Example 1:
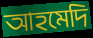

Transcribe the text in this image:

আহমেদি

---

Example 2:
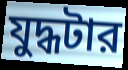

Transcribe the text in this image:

যুদ্ধটার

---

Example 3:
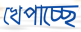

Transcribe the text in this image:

খেপাচ্ছে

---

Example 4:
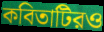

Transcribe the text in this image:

কবিতাটিরও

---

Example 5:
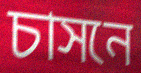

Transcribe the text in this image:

চাসনে